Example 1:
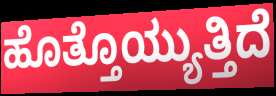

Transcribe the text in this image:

ಹೊತ್ತೊಯ್ಯುತ್ತಿದೆ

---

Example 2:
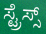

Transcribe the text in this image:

ಸ್ಟ್ರೆಸ್ಸ್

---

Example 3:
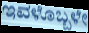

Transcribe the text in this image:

ಇವಳೊಬ್ಬಳೇ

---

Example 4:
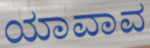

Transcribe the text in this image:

ಯಾವಾವ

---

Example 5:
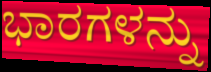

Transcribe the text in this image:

ಭಾರಗಳನ್ನು